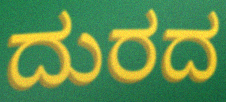
ದುರದ